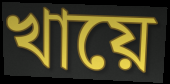
খায়ে